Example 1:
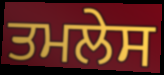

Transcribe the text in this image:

ਤਮਲੇਸ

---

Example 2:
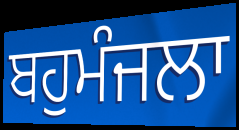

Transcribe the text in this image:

ਬਹੁਮੰਜਲਾ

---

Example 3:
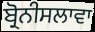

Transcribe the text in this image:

ਬ੍ਰੋਨੀਸਲਾਵਾ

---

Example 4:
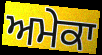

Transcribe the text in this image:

ਅਮੇਕਾ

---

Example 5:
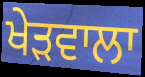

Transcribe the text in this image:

ਖੇੜਵਾਲਾ